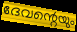
ദേവന്റെയും